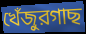
খেঁজুরগাছ